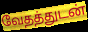
வேதத்துடன்